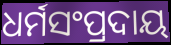
ଧର୍ମସଂପ୍ରଦାୟ